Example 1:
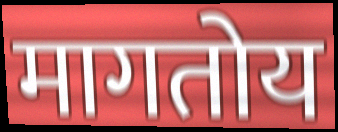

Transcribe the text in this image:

मागतोय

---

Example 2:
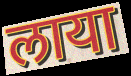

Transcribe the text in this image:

लाया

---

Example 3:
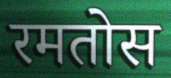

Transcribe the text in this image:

रमतोस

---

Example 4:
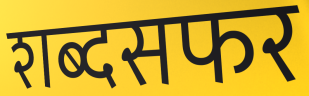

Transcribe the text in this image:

शब्दसफर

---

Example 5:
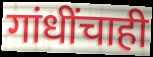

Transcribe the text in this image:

गांधींचाही